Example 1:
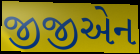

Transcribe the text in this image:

જીજીએન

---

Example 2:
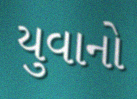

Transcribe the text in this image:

યુવાનો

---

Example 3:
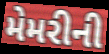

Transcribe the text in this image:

મેમરીની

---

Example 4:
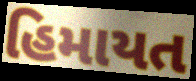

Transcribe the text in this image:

હિમાયત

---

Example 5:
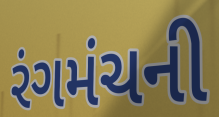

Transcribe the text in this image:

રંગમંચની